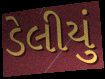
ડેલીયું